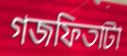
গজফিতাটা